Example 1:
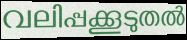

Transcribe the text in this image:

വലിപ്പക്കൂടുതൽ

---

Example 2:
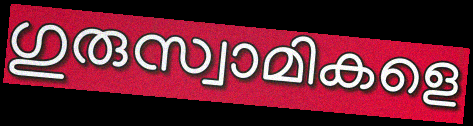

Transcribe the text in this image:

ഗുരുസ്വാമികളെ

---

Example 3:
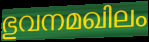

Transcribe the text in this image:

ഭുവനമഖിലം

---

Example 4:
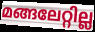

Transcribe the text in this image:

മങ്ങലേറ്റില്ല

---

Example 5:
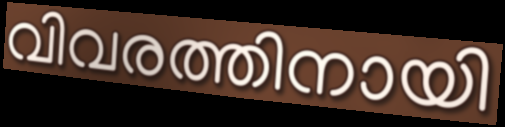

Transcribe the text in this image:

വിവരത്തിനായി